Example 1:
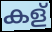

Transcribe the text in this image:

കള്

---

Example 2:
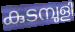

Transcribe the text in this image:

കുടമ്പുളി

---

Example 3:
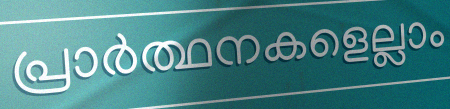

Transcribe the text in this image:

പ്രാർത്ഥനകളെല്ലാം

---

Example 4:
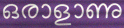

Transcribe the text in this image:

ഒരാളാണു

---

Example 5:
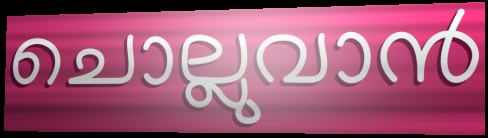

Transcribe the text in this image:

ചൊല്ലുവാൻ